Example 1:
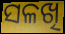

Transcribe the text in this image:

ସଳଖି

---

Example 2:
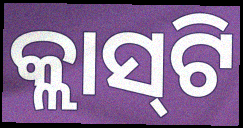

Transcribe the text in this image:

କ୍ଲାସ୍‍ଟି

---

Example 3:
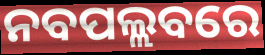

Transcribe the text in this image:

ନବପଲ୍ଲବରେ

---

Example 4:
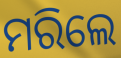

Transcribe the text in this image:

ମରିଲେ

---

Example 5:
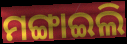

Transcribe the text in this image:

ମଙ୍ଗାଇଲି